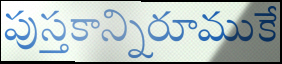
పుస్తకాన్నిరూముకే